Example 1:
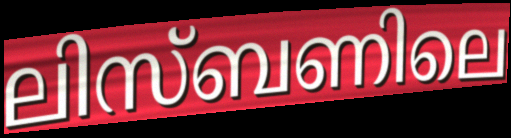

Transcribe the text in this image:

ലിസ്ബണിലെ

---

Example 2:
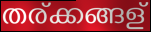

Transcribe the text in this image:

തര്ക്കങ്ങള്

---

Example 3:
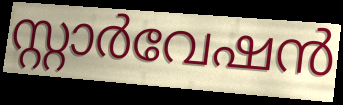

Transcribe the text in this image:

സ്റ്റാർവേഷൻ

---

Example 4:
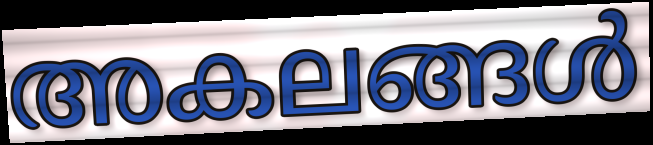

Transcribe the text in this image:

അകലങ്ങൾ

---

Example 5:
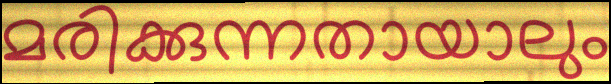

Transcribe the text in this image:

മരിക്കുന്നതായാലും